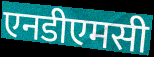
एनडीएमसी